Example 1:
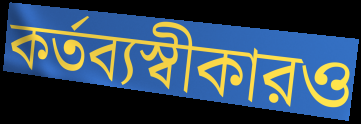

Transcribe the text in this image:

কর্তব্যস্বীকারও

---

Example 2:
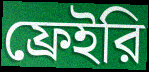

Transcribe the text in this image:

ফ্রেইরি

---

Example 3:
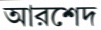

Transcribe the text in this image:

আরশেদ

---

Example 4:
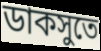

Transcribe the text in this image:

ডাকসুতে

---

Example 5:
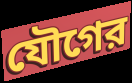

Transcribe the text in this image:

যৌগের